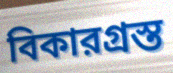
বিকারগ্রস্ত